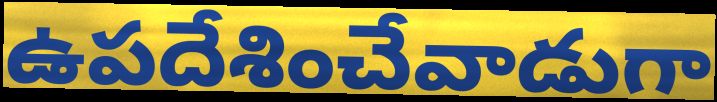
ఉపదేశించేవాడుగా